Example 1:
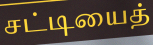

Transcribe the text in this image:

சட்டியைத்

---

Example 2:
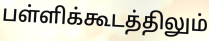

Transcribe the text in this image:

பள்ளிக்கூடத்திலும்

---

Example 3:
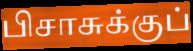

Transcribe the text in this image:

பிசாசுக்குப்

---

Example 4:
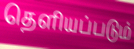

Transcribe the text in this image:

தெளியப்படும்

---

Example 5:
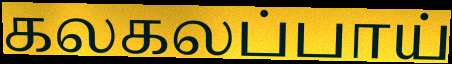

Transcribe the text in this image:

கலகலப்பாய்